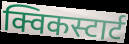
क्विकस्टार्ट